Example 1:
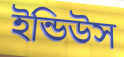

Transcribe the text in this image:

ইন্ডিউস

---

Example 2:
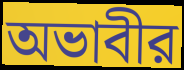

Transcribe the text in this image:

অভাবীর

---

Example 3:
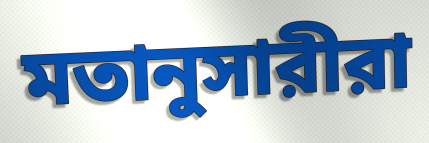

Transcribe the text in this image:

মতানুসারীরা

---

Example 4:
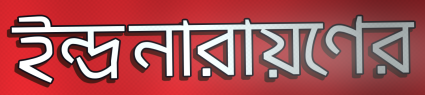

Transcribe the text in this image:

ইন্দ্রনারায়ণের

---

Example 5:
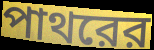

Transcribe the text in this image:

পাথরের